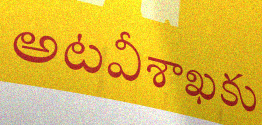
అటవీశాఖకు